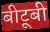
बीटूबी